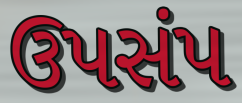
ઉપસંપ